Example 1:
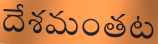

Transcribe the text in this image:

దేశమంతట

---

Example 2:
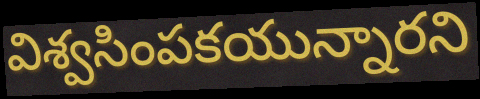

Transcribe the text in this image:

విశ్వసింపకయున్నారని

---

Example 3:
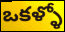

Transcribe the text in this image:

ఒకళ్ళో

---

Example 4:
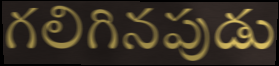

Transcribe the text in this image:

గలిగినపుడు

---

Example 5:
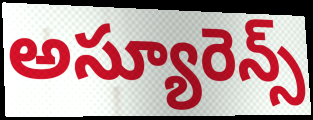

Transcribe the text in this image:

అస్యూరెన్స్